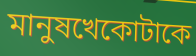
মানুষখেকোটাকে